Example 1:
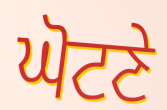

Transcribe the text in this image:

ਘੋਟਣੇ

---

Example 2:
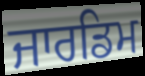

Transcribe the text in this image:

ਜਾਰਡਿਮ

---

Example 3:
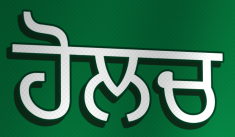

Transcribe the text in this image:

ਹੋਲਚ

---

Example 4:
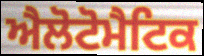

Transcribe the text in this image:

ਐਲੋਟੋਮੈਟਿਕ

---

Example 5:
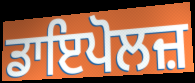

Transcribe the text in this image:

ਡਾਇਪੋਲਜ਼